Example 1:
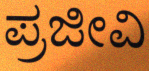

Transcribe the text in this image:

ಪ್ರಜೀವಿ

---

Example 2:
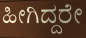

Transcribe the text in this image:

ಹೀಗಿದ್ದರೇ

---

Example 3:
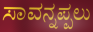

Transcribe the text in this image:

ಸಾವನ್ನಪ್ಪಲು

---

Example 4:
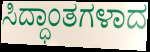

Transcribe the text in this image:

ಸಿದ್ಧಾಂತಗಳಾದ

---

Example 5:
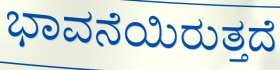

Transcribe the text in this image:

ಭಾವನೆಯಿರುತ್ತದೆ